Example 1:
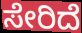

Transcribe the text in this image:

ಸೇರಿದೆ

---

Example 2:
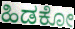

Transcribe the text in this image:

ಹಿಡಕೋ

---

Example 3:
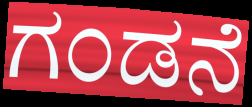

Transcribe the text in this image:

ಗಂಡನೆ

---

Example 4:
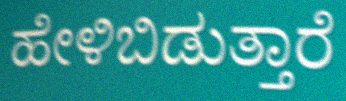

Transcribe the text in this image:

ಹೇಳಿಬಿಡುತ್ತಾರೆ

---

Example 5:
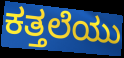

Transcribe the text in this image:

ಕತ್ತಲೆಯು